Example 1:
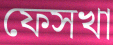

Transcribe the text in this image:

ফেসখা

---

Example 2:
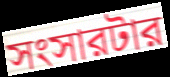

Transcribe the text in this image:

সংসারটার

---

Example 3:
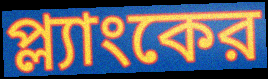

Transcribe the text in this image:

প্ল্যাংকের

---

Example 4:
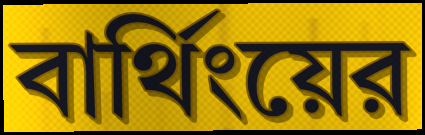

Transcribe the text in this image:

বার্থিংয়ের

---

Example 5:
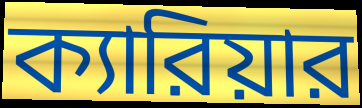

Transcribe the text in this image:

ক্যারিয়ার